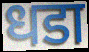
धडा